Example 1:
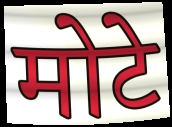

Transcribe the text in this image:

मोटे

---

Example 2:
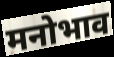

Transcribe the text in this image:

मनोभाव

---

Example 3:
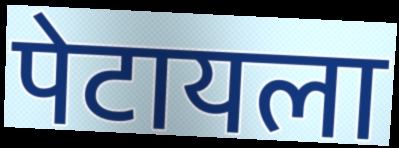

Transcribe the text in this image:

पेटायला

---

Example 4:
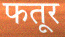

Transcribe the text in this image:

फतूर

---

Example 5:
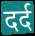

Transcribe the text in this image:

दर्द